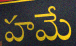
హమే